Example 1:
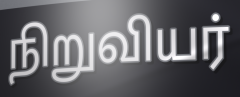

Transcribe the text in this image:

நிறுவியர்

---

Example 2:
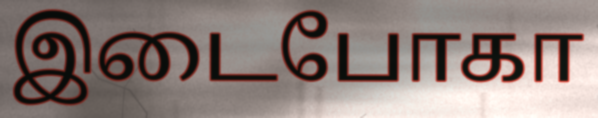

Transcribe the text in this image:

இடைபோகா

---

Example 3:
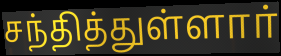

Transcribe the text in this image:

சந்தித்துள்ளார்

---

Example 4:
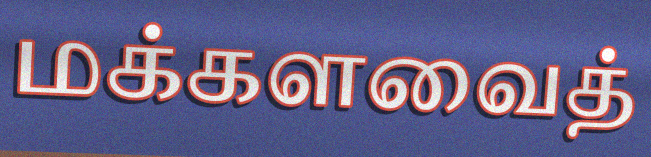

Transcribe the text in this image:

மக்களவைத்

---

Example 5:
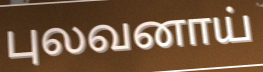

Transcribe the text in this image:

புலவனாய்